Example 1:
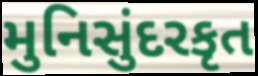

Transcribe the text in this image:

મુનિસુંદરકૃત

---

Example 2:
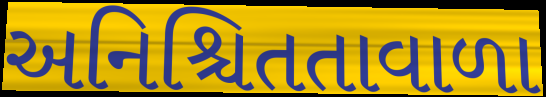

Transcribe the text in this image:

અનિશ્ચિતતાવાળા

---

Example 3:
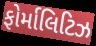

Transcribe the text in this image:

ફોર્માલિટિઝ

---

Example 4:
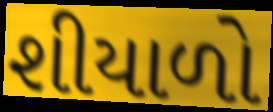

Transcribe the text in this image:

શીયાળો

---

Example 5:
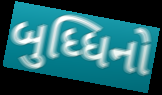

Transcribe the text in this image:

બુધ્ધિનો